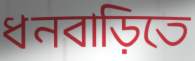
ধনবাড়িতে